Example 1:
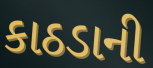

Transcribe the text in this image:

કાઠડાની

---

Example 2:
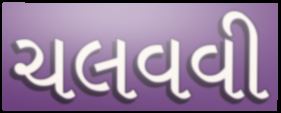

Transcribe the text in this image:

ચલવવી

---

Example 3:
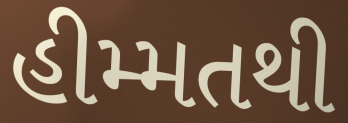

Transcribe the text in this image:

હીમ્મતથી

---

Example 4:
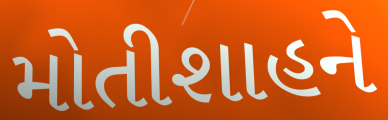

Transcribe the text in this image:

મોતીશાહને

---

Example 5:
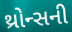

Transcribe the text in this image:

થ્રોન્સની